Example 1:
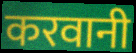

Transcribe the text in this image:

करवानी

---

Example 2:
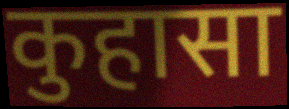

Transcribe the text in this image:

कुहासा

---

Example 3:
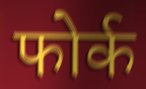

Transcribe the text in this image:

फोर्क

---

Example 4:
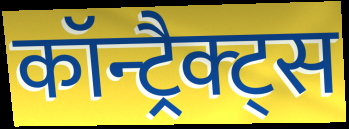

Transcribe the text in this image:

कॉन्‍ट्रैक्‍ट्स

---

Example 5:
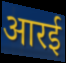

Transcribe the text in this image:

आरई